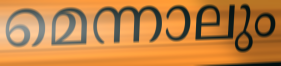
മെന്നാലും